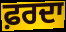
ਫ਼ਰਦਾ